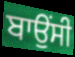
ਬਾਉਂਸੀ